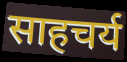
साहचर्य